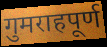
गुमराहपूर्ण